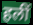
हलीं